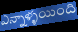
ఎన్నాళ్ళయింది